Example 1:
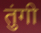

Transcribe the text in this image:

तुंगी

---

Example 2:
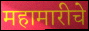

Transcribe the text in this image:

महामारीचे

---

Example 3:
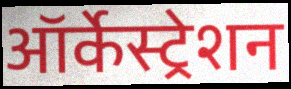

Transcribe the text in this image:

ऑर्केस्ट्रेशन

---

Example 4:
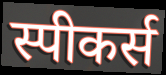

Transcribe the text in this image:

स्पीकर्स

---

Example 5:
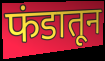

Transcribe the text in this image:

फंडातून